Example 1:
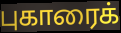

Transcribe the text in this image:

புகாரைக்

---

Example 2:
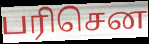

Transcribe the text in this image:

பரிசென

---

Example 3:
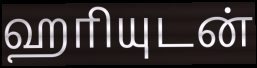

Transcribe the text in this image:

ஹரியுடன்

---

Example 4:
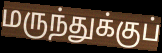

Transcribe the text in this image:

மருந்துக்குப்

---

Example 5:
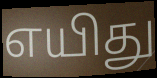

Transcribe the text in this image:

எயிது